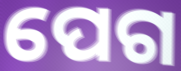
ପେଗ